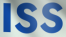
ISS